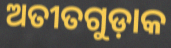
ଅତୀତଗୁଡ଼ାକ